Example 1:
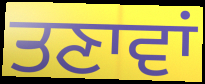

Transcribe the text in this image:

ਤਣਾਵਾਂ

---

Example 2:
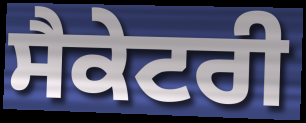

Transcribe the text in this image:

ਸੈਕੇਟਰੀ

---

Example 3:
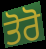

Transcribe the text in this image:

ਤੋਰੋ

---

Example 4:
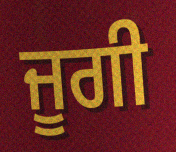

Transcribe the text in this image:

ਜੂਗੀ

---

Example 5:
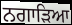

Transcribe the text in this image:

ਨਗਾੜਿਆ